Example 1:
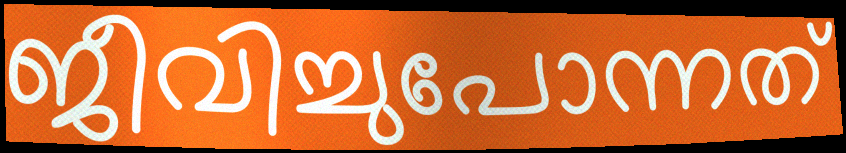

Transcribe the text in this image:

ജീവിച്ചുപോന്നത്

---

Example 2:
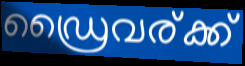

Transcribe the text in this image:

ഡ്രൈവര്ക്ക്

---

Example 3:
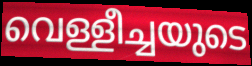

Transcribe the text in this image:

വെള്ളീച്ചയുടെ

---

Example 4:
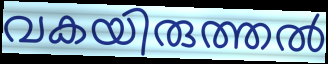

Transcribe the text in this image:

വകയിരുത്തൽ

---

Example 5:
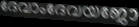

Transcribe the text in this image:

ദേവാംദേവയജോ